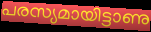
പരസ്യമായിട്ടാണു